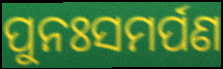
ପୁନଃସମର୍ପଣ